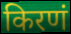
किरणं